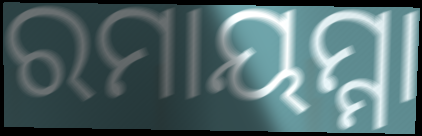
ରମାୟମ୍ମା